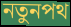
নতুনপথ